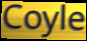
Coyle